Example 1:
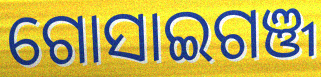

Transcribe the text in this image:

ଗୋସାଇଗଞ୍ଜ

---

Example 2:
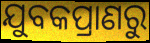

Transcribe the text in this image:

ଯୁବକପ୍ରାଣରୁ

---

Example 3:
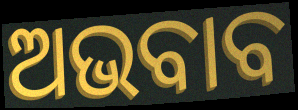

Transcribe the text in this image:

ଅଭବାବ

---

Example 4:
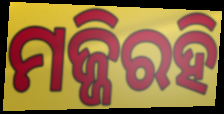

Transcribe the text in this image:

ମଜ୍ଜିରହି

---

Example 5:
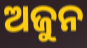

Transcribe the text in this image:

ଅଜୁନ